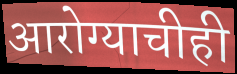
आरोग्याचीही